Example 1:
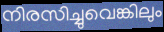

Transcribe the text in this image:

നിരസിച്ചുവെങ്കിലും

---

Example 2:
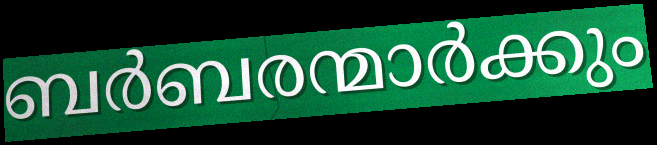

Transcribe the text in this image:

ബർബരന്മാർക്കും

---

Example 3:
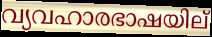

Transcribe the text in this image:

വ്യവഹാരഭാഷയില്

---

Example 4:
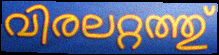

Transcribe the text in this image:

വിരലറ്റത്തു്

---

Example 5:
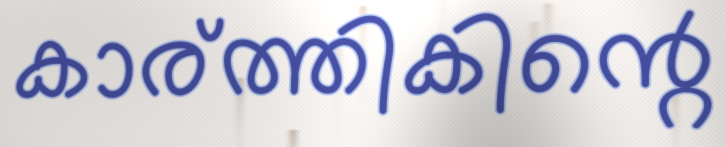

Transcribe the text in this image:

കാര്ത്തികിന്റെ